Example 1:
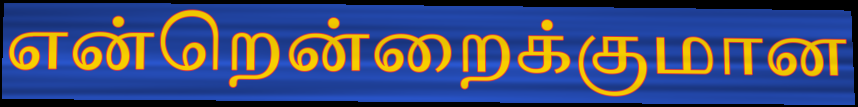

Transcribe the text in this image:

என்றென்றைக்குமான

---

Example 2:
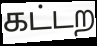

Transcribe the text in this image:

கட்டற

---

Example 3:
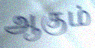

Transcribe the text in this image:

ஆகும்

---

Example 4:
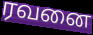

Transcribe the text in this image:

ரவனை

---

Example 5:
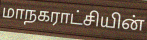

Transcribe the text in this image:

மாநகராட்சியின்